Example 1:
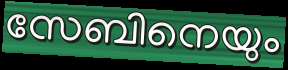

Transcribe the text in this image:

സേബിനെയും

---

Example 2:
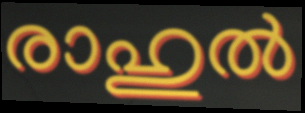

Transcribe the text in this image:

രാഹുൽ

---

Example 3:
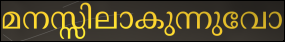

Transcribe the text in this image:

മനസ്സിലാകുന്നുവോ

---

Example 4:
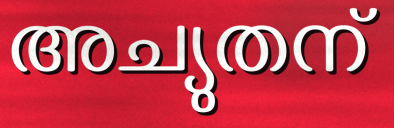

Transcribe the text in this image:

അച്യുതന്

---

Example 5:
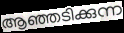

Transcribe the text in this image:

ആഞ്ഞടിക്കുന്ന